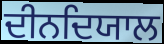
ਦੀਨਦਿਯਾਲ